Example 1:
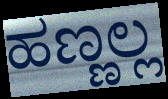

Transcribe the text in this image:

ಹಣ್ಣಲ್ಲ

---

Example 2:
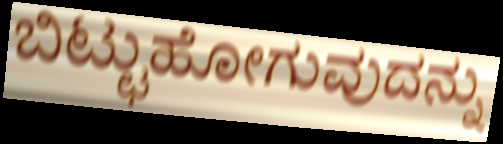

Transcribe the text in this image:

ಬಿಟ್ಟುಹೋಗುವುದನ್ನು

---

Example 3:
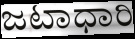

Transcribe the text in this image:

ಜಟಾಧಾರಿ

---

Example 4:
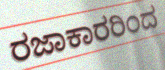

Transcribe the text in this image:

ರಜಾಕಾರರಿಂದ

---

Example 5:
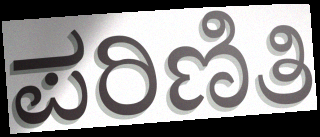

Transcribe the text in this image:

ಪರಿಣಿತಿ